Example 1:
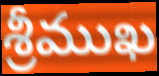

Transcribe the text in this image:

శ్రీముఖ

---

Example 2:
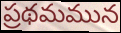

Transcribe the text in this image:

ప్రథమమున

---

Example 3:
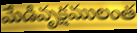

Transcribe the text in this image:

మేడివృక్షములంత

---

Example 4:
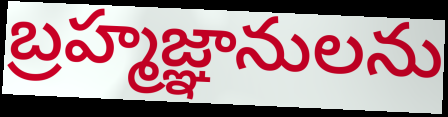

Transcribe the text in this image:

బ్రహ్మజ్ఞానులను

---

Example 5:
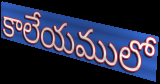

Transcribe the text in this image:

కాలేయములో